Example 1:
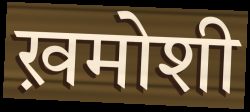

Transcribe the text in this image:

ख़मोशी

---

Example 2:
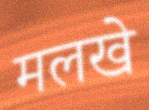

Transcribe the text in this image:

मलखे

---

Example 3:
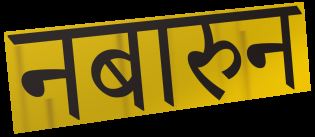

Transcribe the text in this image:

नबारुन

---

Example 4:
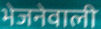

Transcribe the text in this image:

भेजनेवाली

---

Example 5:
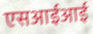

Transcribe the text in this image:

एसआईआई